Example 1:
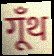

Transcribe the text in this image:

गूँथ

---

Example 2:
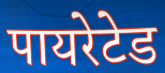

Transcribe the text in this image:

पायरेटेड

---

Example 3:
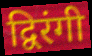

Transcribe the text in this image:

द्विरंगी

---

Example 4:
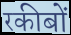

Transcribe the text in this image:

रकीबों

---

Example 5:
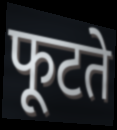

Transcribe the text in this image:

फूटते